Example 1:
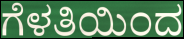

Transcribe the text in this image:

ಗೆಳತಿಯಿಂದ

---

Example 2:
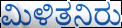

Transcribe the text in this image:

ಮಿಳಿತನಿರು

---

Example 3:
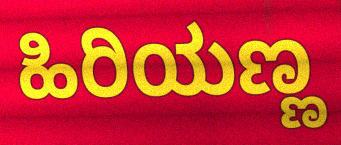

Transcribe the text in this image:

ಹಿರಿಯಣ್ಣ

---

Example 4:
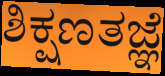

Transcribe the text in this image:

ಶಿಕ್ಷಣತಜ್ಞೆ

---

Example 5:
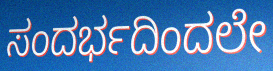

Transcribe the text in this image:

ಸಂದರ್ಭದಿಂದಲೇ